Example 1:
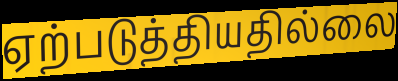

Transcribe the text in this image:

ஏற்படுத்தியதில்லை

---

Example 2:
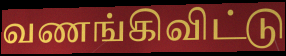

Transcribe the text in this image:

வணங்கிவிட்டு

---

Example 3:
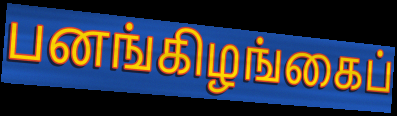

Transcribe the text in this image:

பனங்கிழங்கைப்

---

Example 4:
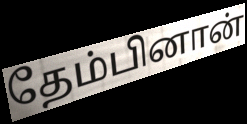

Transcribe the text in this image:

தேம்பினான்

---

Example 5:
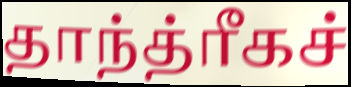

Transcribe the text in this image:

தாந்த்ரீகச்